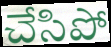
చేసిపో